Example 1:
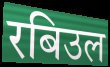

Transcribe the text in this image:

रबिउल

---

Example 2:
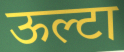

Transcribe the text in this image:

ऊल्टा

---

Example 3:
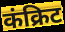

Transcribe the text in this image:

कंक्रिट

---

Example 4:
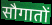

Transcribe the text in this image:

सौगातों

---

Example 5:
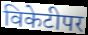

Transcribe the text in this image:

विकेटीपर